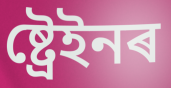
ষ্ট্ৰেইনৰ